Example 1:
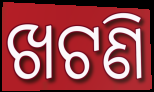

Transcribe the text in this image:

ଖଟଣି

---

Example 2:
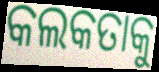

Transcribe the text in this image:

କଲକତାକୁ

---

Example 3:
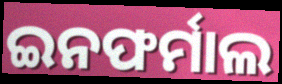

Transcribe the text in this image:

ଇନଫର୍ମାଲ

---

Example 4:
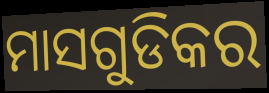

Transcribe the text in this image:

ମାସଗୁଡିକର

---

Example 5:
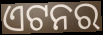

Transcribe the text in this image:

ଏଟନର